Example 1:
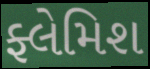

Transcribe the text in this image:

ફ્લેમિશ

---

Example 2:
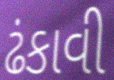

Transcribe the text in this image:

ઢંકાવી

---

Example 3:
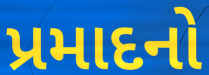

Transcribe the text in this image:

પ્રમાદનો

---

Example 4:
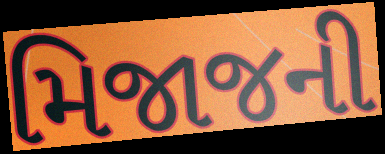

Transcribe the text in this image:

મિજાજની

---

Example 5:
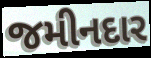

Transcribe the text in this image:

જમીનદાર